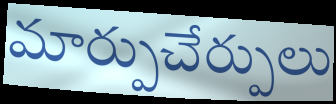
మార్పుచేర్పులు